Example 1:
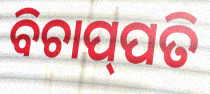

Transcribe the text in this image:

ବିଚାପ୍‌ପତି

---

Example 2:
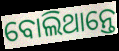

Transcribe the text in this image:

ବୋଲିଥାନ୍ତେ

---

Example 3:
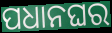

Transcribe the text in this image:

ପଧାନଘର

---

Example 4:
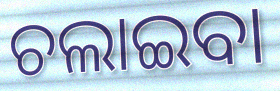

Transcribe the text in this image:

ଚଲାଇବା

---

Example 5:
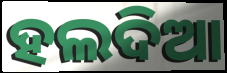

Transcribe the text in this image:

ହଲଦିଆ